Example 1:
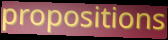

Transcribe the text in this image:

propositions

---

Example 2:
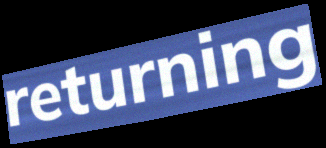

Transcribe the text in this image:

returning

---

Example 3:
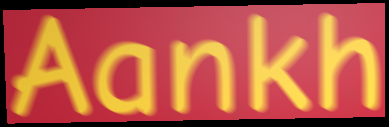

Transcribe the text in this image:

Aankh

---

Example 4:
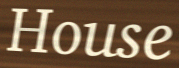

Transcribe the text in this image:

House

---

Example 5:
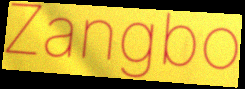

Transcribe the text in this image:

Zangbo